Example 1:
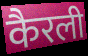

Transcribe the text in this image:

कैरली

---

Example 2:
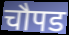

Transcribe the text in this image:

चौपड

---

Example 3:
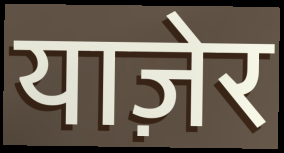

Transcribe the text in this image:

याज़ेर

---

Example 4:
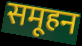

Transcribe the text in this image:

समूहन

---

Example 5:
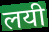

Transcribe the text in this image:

लयी